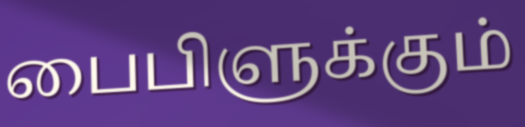
பைபிளுக்கும்